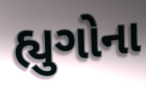
હ્યુગોના